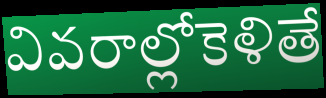
వివరాల్లోకెళితే